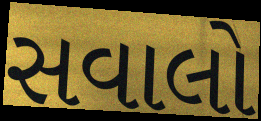
સવાલો